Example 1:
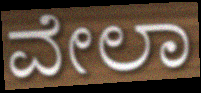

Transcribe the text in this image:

ವೇಲಾ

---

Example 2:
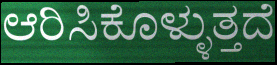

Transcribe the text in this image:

ಆರಿಸಿಕೊಳ್ಳುತ್ತದೆ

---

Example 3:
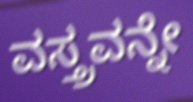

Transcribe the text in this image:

ವಸ್ತ್ರವನ್ನೇ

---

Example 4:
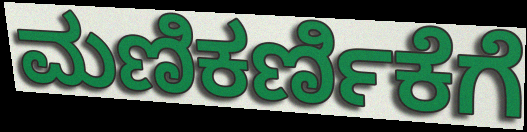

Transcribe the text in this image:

ಮಣಿಕರ್ಣಿಕೆಗೆ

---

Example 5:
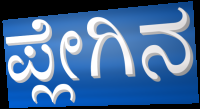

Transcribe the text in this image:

ಪ್ಲೇಗಿನ